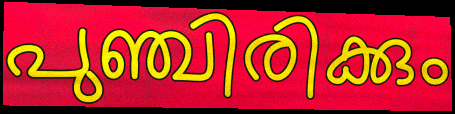
പുഞ്ചിരിക്കും